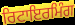
ਰਿਟਾਇਰਮਿੰਗ